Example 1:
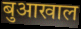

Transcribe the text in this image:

बुआखाल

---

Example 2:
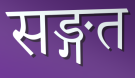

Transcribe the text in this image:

सङ्गत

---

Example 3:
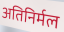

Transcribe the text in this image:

अतिनिर्मल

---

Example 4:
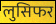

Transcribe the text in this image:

लुसिफर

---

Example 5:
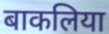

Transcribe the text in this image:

बाकलिया